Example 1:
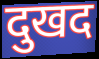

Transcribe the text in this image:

दुखद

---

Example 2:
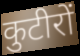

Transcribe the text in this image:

कुटीरों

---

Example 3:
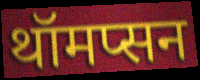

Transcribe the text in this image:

थॉमप्सन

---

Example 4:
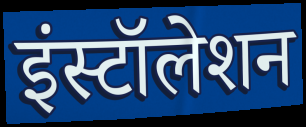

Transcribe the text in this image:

इंस्टॉलेशन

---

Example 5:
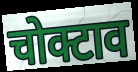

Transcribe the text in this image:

चोक्टाव